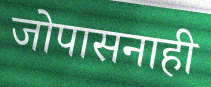
जोपासनाही